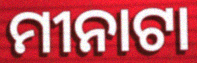
ମୀନାଟା